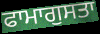
ਫਾਮਾਗੁਸਤਾ